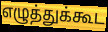
எழுத்துக்கூட